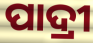
ପାଦ୍ରୀ